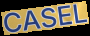
CASEL